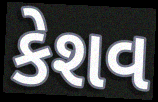
કેશવ